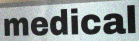
medical